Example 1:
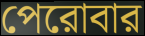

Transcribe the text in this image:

পেরোবার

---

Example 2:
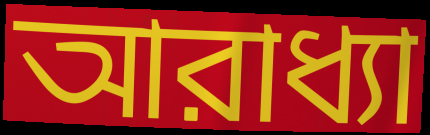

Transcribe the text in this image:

আরাধ্যা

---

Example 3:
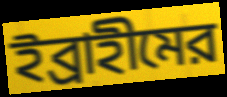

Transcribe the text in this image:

ইব্রাহীমের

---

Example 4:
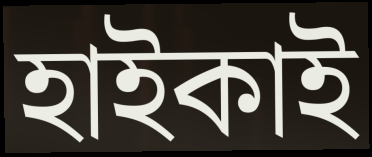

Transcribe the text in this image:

হাইকাই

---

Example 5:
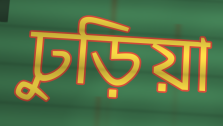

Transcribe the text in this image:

ঢুড়িয়া